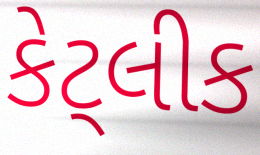
કેટ્લીક